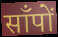
साँपों